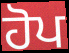
ਹੋਪ